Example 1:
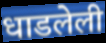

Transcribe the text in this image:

धाडलेली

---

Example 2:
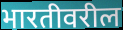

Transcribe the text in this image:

भारतीवरील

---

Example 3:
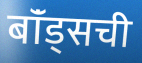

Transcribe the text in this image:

बॉंड्सची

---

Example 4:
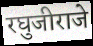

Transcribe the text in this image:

रघुजीराजे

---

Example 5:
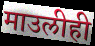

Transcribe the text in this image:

माउलीही